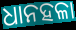
ଧାନହଳା